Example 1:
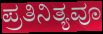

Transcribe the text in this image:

ಪ್ರತಿನಿತ್ಯವೂ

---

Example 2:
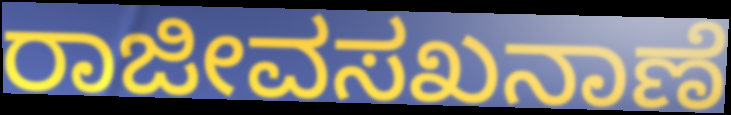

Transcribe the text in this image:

ರಾಜೀವಸಖನಾಣೆ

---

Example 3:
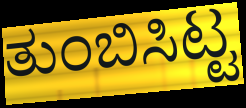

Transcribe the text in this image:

ತುಂಬಿಸಿಟ್ಟ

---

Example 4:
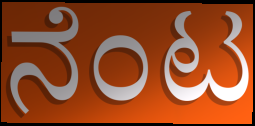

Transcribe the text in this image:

ನೆಂಟ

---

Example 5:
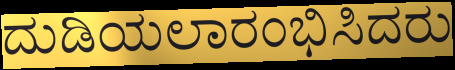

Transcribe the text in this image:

ದುಡಿಯಲಾರಂಭಿಸಿದರು